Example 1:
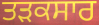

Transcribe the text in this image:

ਤੜਕਸਾਰ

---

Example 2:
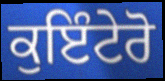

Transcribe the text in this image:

ਕੁਇੰਟੇਰੋ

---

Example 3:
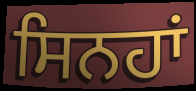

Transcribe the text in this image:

ਸਿਨਹਾਂ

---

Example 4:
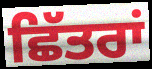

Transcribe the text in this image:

ਛਿੱਤਰਾਂ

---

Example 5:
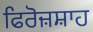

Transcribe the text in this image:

ਫਿਰੋਜ਼ਸ਼ਾਹ